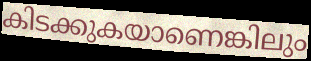
കിടക്കുകയാണെങ്കിലും